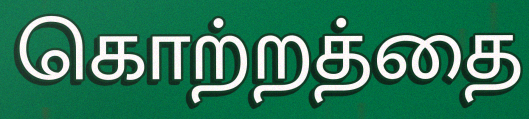
கொற்றத்தை